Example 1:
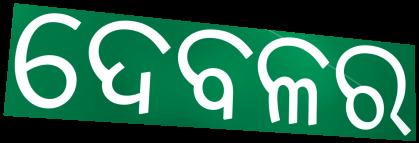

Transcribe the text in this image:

ଦେବଳର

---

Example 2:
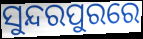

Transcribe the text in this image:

ସୁନ୍ଦରପୁରରେ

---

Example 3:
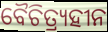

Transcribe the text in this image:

ବୈଚିତ୍ର୍ୟହୀନ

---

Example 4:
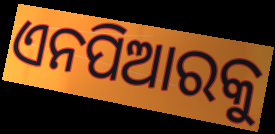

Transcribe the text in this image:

ଏନପିଆରକୁ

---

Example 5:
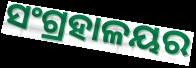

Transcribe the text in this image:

ସଂଗ୍ରହାଳୟର